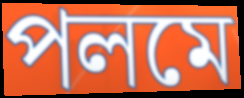
পলমে